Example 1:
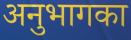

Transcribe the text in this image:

अनुभागका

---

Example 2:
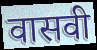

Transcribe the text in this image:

वासवी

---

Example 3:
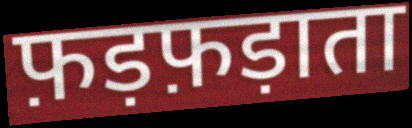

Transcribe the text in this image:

फ़ड़फ़ड़ाता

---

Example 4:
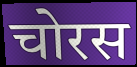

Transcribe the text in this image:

चोरस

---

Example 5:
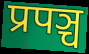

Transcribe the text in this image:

प्रपञ्च